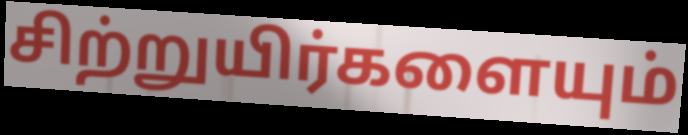
சிற்றுயிர்களையும்